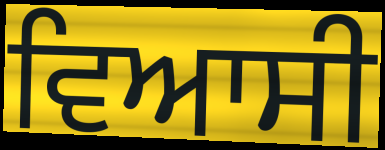
ਵਿਆਸੀ